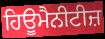
ਹਿਊਮੈਨੀਟੀਜ਼